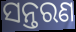
ସନ୍ତରଣ